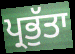
ਪ੍ਰਭੁੱਤਾ